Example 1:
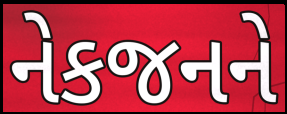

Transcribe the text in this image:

નેકજનને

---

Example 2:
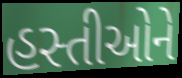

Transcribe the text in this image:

હસ્તીઓને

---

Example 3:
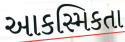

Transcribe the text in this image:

આકસ્મિકતા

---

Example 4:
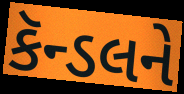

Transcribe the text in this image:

કૅન્ડલને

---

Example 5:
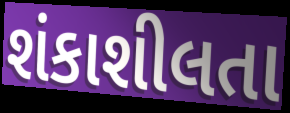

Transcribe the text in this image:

શંકાશીલતા